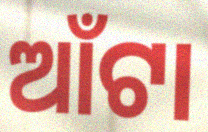
ଆଁଟା